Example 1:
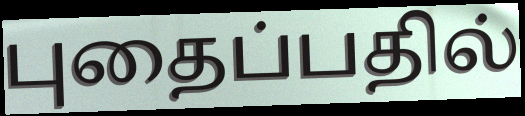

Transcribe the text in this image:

புதைப்பதில்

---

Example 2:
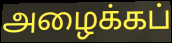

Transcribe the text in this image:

அழைக்கப்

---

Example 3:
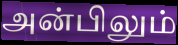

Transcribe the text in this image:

அன்பிலும்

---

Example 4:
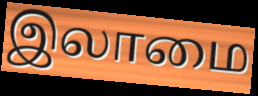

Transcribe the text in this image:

இலாமை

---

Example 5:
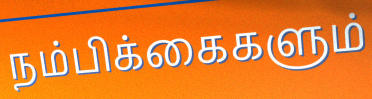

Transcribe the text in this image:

நம்பிக்கைகளும்